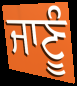
ਜਾਣੂੰ